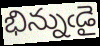
భిన్నుఁడై